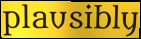
plausibly